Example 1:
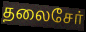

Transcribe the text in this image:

தலைசேர்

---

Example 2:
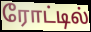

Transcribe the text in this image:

ரோட்டில்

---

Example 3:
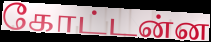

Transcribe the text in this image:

கோட்டன்ன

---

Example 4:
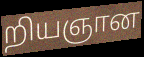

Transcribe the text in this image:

றியஞான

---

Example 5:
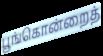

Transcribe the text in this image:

பூங்கொன்றைத்